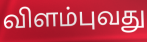
விளம்புவது